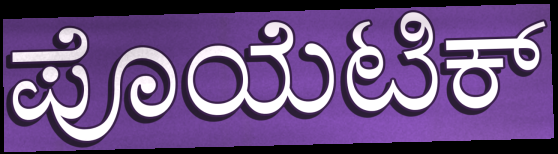
ಪೊಯೆಟಿಕ್